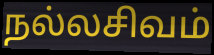
நல்லசிவம்